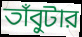
তাঁবুটার